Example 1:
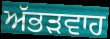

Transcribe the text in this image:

ਅੱਭੜਵਾਹ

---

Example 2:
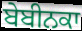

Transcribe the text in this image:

ਬੇਬੀਨਕਾ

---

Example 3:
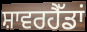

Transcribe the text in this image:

ਸ਼ਾਵਰਹੈੱਡਾਂ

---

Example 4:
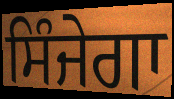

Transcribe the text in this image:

ਸਿੰਜੇਗਾ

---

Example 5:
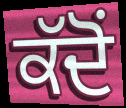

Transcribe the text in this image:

ਕੱਦੋਂ